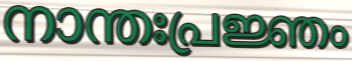
നാന്തഃപ്രജ്ഞം